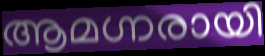
ആമഗ്നരായി